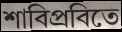
শাবিপ্রবিতে